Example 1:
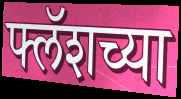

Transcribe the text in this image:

फ्लॅशच्या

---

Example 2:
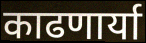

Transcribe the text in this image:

काढणार्या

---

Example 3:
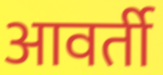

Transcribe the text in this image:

आवर्ती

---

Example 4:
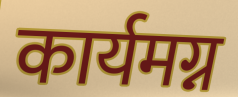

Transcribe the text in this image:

कार्यमग्न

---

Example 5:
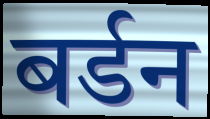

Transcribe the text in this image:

बर्डन